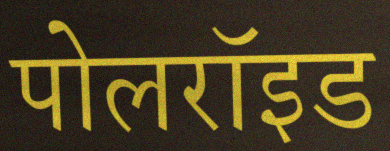
पोलरॉइड